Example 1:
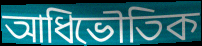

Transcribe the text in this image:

আধিভৌতিক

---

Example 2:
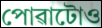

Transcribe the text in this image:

পোৱাটোও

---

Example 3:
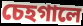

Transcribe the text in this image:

চেহগালে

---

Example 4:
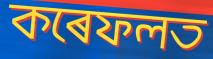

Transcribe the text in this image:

কৰেফলত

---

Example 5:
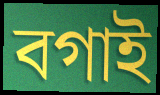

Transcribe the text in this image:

বগাই